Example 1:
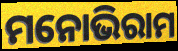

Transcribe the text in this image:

ମନୋଭିରାମ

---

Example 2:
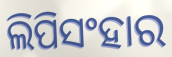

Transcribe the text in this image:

ଲିପିସଂହାର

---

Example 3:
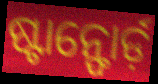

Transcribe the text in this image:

ଷ୍ଟାନ୍ଫୋର୍ଡ଼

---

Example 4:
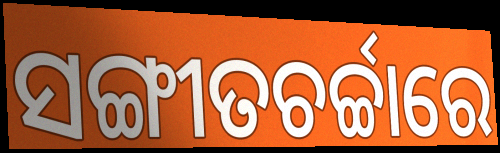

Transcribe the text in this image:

ସଙ୍ଗୀତଚର୍ଚ୍ଚାରେ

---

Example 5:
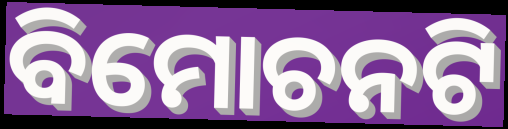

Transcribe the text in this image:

ବିମୋଚନଟି